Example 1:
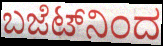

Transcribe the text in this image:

ಬಜೆಟ್‌ನಿಂದ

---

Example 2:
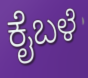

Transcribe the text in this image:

ಕೈಬಳೆ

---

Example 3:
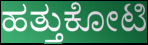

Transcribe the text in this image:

ಹತ್ತುಕೋಟಿ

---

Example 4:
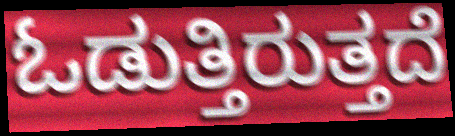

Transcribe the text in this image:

ಓಡುತ್ತಿರುತ್ತದೆ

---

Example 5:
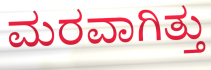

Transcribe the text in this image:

ಮರವಾಗಿತ್ತು